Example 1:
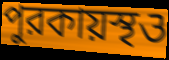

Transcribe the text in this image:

পুরকায়স্থও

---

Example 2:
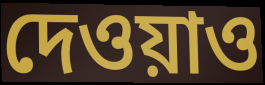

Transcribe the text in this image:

দেওয়াও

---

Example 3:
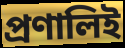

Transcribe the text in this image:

প্রণালিই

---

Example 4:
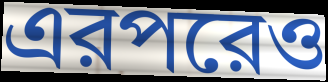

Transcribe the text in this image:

এরপরেও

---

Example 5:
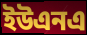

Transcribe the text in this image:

ইউএনএ